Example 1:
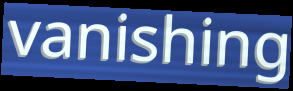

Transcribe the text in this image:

vanishing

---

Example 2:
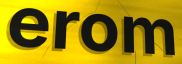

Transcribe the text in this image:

erom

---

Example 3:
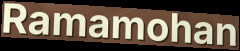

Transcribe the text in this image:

Ramamohan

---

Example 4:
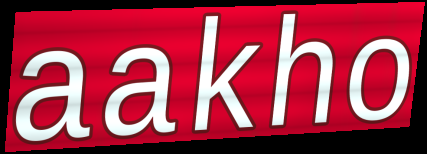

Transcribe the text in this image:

aakho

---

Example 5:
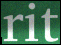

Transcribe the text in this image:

rit